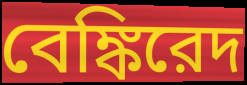
বেঙ্কিরেদ